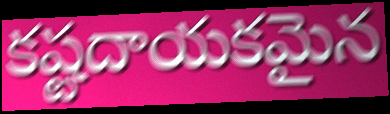
కష్టదాయకమైన